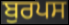
ਬੁਰਪਸ